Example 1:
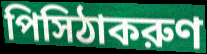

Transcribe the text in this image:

পিসিঠাকরুণ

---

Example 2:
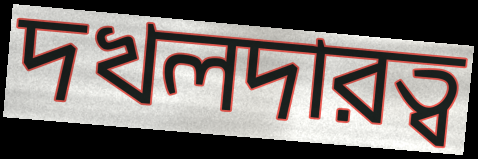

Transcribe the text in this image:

দখলদারত্ব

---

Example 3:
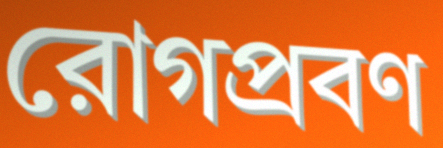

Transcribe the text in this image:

রোগপ্রবণ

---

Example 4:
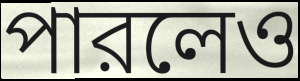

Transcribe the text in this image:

পারলেও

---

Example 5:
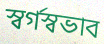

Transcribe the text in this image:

স্বর্গস্বভাব